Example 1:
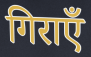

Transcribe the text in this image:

गिराएँ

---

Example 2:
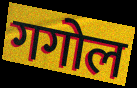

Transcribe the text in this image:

गगोल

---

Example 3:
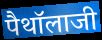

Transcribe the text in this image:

पैथॉलाजी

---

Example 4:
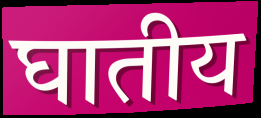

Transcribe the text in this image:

घातीय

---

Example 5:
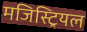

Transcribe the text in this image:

मजिस्ट्रियल